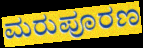
ಮರುಪೂರಣ